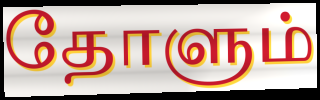
தோளும்